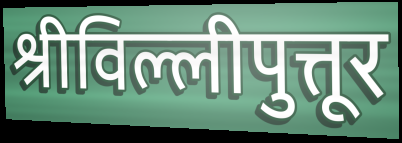
श्रीविल्लीपुत्तूर